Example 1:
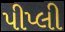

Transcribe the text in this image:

પીપ્લી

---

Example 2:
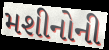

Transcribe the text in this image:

મશીનોની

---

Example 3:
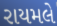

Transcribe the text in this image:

રાયમલે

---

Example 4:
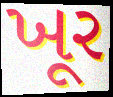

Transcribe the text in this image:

ખૂર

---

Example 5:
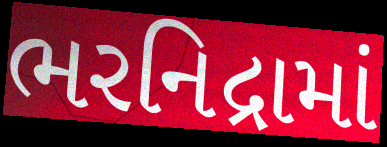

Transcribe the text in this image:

ભરનિદ્રામાં